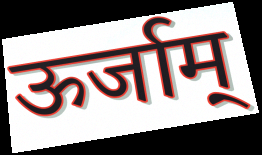
ऊर्जाम्